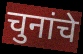
चुनांचे